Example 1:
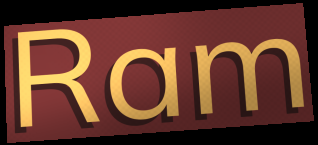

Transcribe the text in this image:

Ram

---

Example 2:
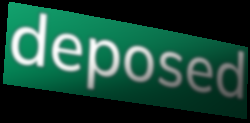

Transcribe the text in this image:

deposed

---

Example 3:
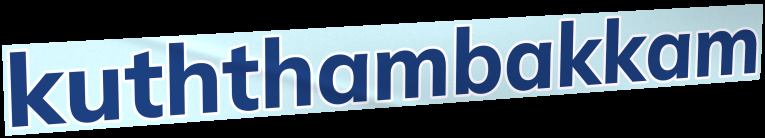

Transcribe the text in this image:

kuththambakkam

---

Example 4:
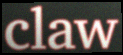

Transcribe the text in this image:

claw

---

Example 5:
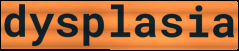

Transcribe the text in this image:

dysplasia